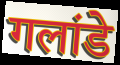
गलांडे